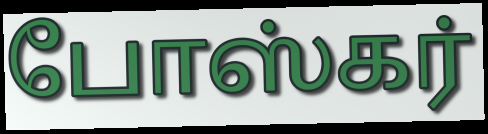
போஸ்கர்